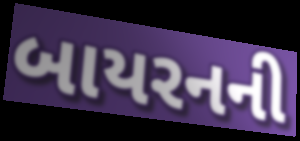
બાયરનની